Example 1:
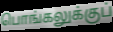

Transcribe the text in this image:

பொங்கலுக்குப்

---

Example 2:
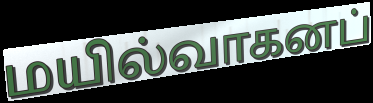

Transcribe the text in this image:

மயில்வாகனப்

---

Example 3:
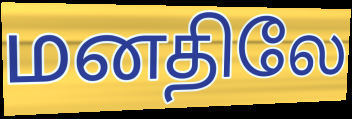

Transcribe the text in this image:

மனதிலே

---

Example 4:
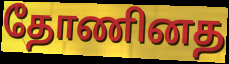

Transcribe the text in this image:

தோணினத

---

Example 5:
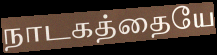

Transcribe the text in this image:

நாடகத்தையே